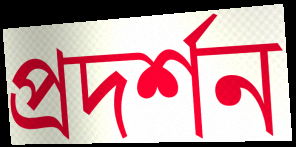
প্ৰদৰ্শন